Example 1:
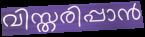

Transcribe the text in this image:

വിസ്തരിപ്പാൻ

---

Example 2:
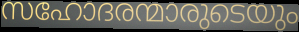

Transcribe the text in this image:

സഹോദരന്മാരുടെയും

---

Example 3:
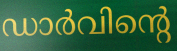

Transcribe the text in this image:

ഡാർവിന്റെ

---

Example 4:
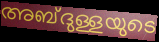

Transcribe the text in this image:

അബ്ദുള്ളയുടെ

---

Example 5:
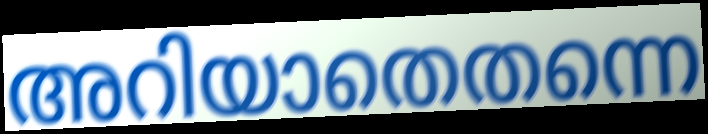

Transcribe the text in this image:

അറിയാതെതന്നെ